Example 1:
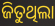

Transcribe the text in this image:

ଜିତୁଥିଲା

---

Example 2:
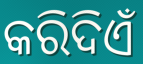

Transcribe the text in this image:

କରିଦିଏଁ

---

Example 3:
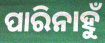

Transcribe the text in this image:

ପାରିନାହୁଁ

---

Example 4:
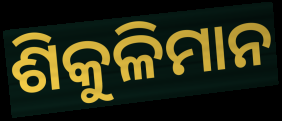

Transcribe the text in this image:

ଶିକୁଳିମାନ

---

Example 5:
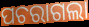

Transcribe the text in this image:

ପଚରାଗଲା